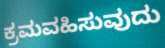
ಕ್ರಮವಹಿಸುವುದು